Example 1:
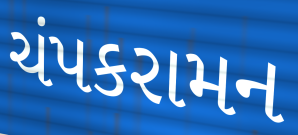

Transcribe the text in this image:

ચંપકરામન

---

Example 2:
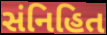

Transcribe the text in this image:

સંનિહિત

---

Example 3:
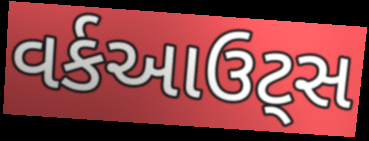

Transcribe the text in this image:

વર્કઆઉટ્સ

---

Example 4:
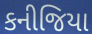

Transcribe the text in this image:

કનીજિયા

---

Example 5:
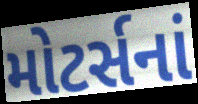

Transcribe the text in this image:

મોટર્સનાં